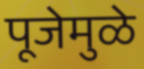
पूजेमुळे